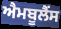
ਐਮਬੂਲੈਂਸ